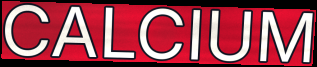
CALCIUM